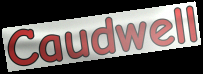
Caudwell